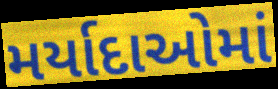
મર્યાદાઓમાં